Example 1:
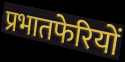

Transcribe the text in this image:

प्रभातफेरियों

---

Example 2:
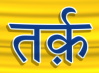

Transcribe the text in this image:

तर्क़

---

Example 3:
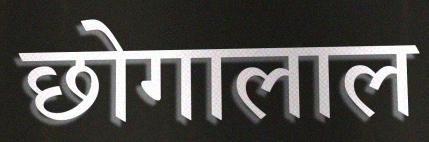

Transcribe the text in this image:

छोगालाल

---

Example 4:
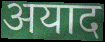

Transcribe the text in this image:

अयाद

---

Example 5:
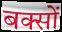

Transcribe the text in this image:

बक्सों